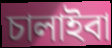
চালাইবা